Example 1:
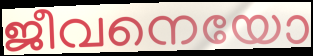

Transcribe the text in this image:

ജീവനെയോ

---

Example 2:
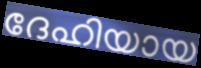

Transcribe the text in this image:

ദേഹിയായ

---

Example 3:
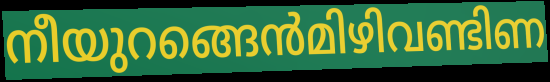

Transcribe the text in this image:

നീയുറങ്ങെൻമിഴിവണ്ടിണ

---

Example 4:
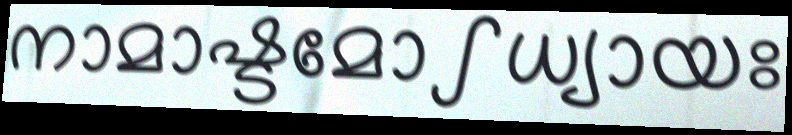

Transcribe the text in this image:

നാമാഷ്ടമോഽധ്യായഃ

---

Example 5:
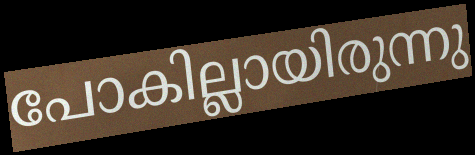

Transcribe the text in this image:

പോകില്ലായിരുന്നു